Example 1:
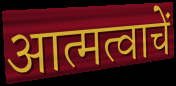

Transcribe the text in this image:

आत्मत्वाचें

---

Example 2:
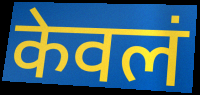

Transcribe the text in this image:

केवलं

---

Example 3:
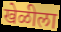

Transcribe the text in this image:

खेळीला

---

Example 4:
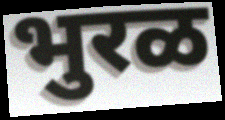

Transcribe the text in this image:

भुरळ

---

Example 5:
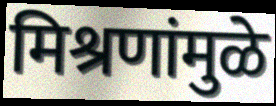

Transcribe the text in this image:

मिश्रणांमुळे